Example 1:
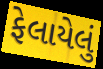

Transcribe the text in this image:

ફેલાયેલું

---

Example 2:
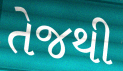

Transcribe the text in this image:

તેજથી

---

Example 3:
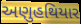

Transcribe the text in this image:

અણુહથિયાર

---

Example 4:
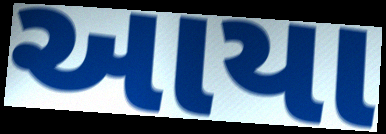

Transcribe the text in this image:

આયા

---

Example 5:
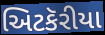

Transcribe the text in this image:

અિટકૅરીયા